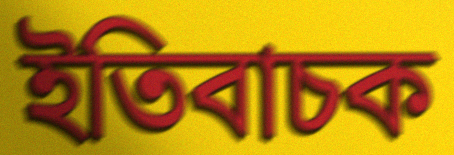
ইতিবাচক